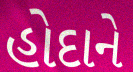
હોદાને